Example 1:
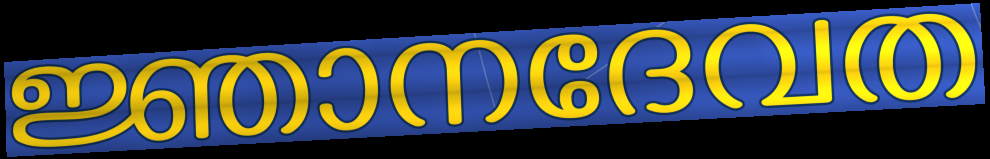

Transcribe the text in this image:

ജ്ഞാനദേവത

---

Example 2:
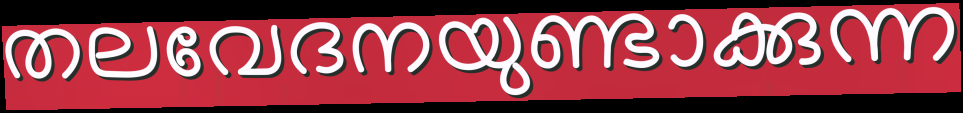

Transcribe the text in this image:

തലവേദനയുണ്ടാക്കുന്ന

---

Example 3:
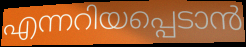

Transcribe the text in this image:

എന്നറിയപ്പെടാൻ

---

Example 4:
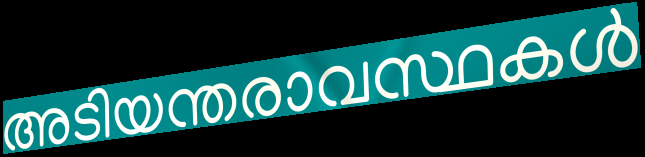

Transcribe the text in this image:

അടിയന്തരാവസ്ഥകൾ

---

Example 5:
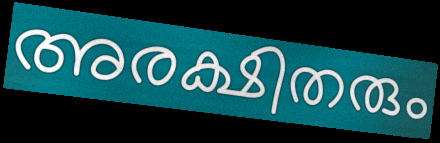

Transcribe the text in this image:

അരക്ഷിതരും